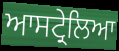
ਆਸਟ੍ਰੇਲਿਆ